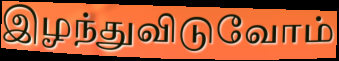
இழந்துவிடுவோம்